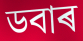
ডবাৰ